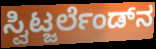
ಸ್ವಿಟ್ಜರ್ಲೆಂಡ್‌ನ